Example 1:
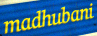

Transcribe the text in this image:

madhubani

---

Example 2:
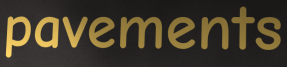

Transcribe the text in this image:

pavements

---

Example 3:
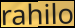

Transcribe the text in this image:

rahilo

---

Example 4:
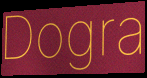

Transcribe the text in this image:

Dogra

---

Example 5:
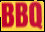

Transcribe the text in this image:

BBQ